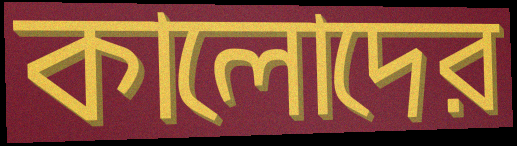
কালোদের